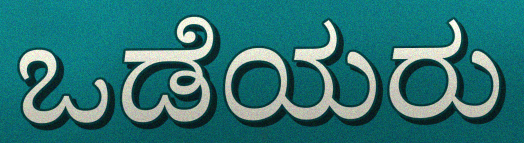
ಒಡೆಯರು